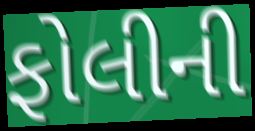
ફોલીની